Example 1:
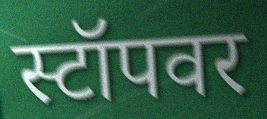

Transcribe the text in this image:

स्टॉपवर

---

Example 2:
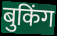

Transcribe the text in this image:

बुकिंग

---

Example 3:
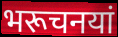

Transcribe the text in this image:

भरूचनयां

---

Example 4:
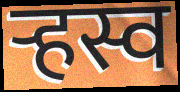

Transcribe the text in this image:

र्‍हस्व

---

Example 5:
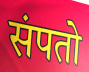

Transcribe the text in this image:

संपतो